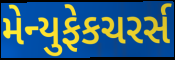
મેન્યુફેકચરર્સ